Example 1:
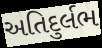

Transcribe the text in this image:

અતિદુર્લભ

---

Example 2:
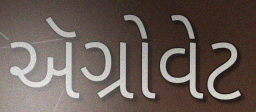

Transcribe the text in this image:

ઍગ્રોવેટ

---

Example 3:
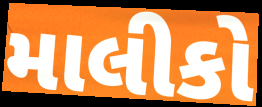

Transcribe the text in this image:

માલીકો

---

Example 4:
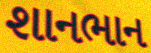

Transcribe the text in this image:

શાનભાન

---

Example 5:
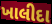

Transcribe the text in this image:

ખાલીદા